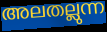
അലതല്ലുന്ന